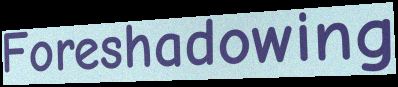
Foreshadowing